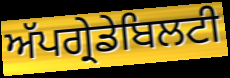
ਅੱਪਗ੍ਰੇਡੇਬਿਲਟੀ